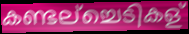
കണ്ടല്ച്ചെടികള്